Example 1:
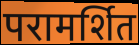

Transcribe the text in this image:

परामर्शित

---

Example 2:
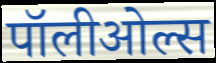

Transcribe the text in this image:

पॉलीओल्स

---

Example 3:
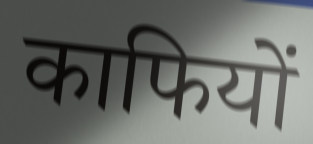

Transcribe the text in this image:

काफियों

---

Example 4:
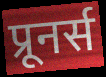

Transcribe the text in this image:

प्रूनर्स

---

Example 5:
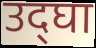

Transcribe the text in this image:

उद्घा